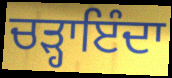
ਚੜ੍ਹਾਇੰਦਾ